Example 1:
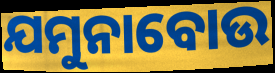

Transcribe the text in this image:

ଯମୁନାବୋଉ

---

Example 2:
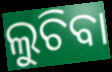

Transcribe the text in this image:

ଲୁଚିବା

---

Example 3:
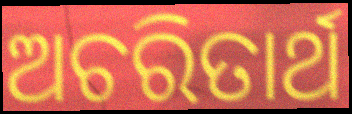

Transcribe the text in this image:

ଅଚରିତାର୍ଥ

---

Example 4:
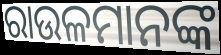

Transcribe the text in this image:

ରାଉଳମାନଙ୍କ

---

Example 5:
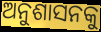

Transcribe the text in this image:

ଅନୁଶାସନକୁ